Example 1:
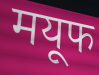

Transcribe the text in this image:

मयूफ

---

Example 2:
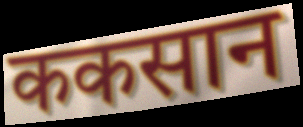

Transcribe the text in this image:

ककसान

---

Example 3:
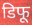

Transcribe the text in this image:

डिफू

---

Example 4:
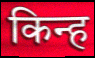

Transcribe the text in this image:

किन्ह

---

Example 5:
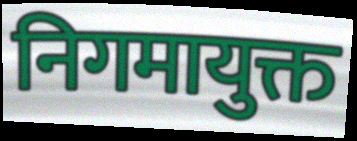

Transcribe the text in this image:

निगमायुक्त